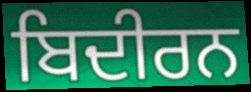
ਬਿਦੀਰਨ